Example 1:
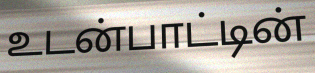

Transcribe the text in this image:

உடன்பாட்டின்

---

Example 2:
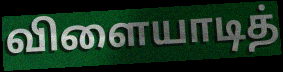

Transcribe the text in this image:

விளையாடித்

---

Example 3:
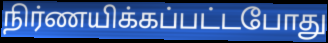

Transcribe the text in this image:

நிர்ணயிக்கப்பட்டபோது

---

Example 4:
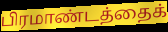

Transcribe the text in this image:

பிரமாண்டத்தைக்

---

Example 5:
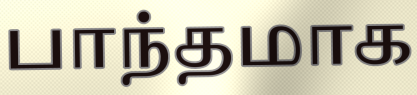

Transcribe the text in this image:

பாந்தமாக